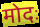
मोदः